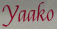
Yaako